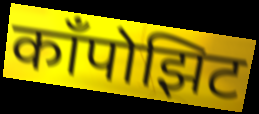
काँपोझिट